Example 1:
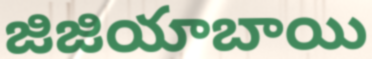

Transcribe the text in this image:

జిజియాబాయి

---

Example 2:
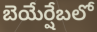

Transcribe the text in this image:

బెయేర్షేబలో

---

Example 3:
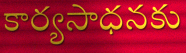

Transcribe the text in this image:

కార్యసాధనకు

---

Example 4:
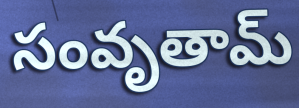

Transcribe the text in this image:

సంవృతామ్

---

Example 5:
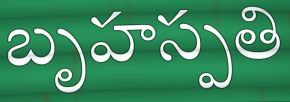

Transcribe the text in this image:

బృహస్పతి